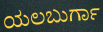
ಯಲಬುರ್ಗಾ